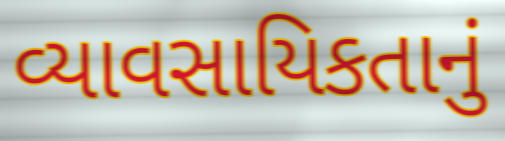
વ્યાવસાયિકતાનું